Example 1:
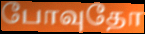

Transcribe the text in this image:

போவுதோ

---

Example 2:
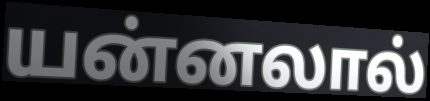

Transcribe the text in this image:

யன்னலால்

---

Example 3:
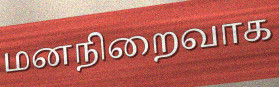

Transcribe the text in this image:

மனநிறைவாக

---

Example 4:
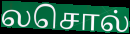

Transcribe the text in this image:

லசொல்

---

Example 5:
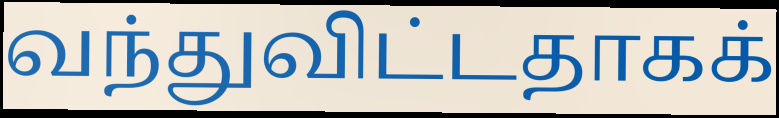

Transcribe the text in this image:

வந்துவிட்டதாகக்